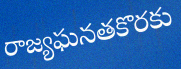
రాజ్యఘనతకొరకు